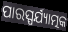
ପାରସ୍ପର୍ଯ୍ୟାତ୍ମକ